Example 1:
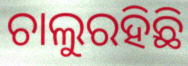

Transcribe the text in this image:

ଚାଲୁରହିଛି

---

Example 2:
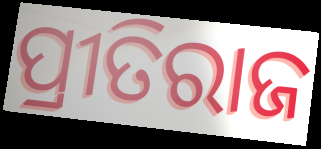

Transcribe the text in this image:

ପ୍ରୀତିରାଜ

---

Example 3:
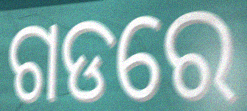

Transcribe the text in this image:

ଗଡରେ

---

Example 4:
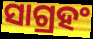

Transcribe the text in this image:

ସାଗ୍ରହଂ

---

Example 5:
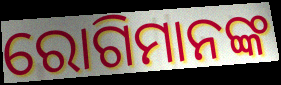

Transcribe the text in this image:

ରୋଗିମାନଙ୍କ